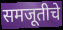
समजूतीचे